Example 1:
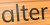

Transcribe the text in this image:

alter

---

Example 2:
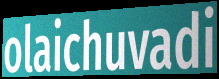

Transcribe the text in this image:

olaichuvadi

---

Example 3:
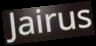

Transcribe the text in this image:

Jairus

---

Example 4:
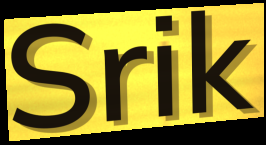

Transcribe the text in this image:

Srik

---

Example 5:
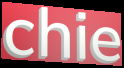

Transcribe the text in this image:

chie